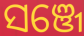
ସଞ୍ଜେ